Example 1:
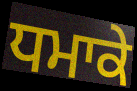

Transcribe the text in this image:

ਧਮਾਕੇ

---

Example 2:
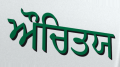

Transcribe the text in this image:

ਔਚਿਤਯ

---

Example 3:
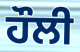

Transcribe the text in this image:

ਹੌਲੀ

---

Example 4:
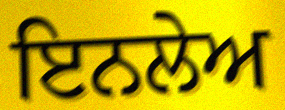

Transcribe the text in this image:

ਇਨਲੇਅ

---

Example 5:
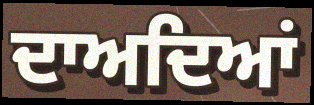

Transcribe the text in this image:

ਦਾਅਦਿਆਂ